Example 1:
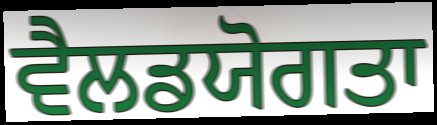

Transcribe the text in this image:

ਵੈਲਡਯੋਗਤਾ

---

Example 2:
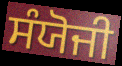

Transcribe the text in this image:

ਸੰਯੋਜੀ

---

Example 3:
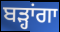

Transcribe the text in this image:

ਬੜ੍ਹਾਂਗਾ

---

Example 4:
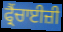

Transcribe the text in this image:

ਫ੍ਰੈਂਚਾਈਜ਼ੀ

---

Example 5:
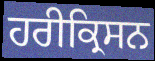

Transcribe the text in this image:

ਹਰੀਕ੍ਰਿਸਨ